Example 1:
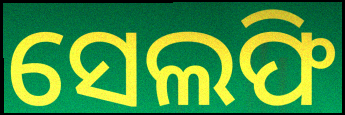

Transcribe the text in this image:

ସେଲଫି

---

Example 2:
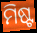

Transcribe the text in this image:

ମିଷ୍ଟ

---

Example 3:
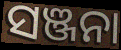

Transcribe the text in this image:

ସଞ୍ଜନା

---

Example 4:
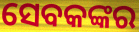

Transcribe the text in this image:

ସେବକଙ୍କର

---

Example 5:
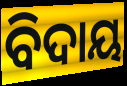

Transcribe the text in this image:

ବିଦାୟ